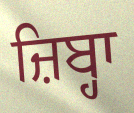
ਜ਼ਿਬ੍ਹਾ